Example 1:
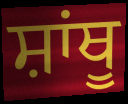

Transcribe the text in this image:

ਸ਼ਾਂਥੂ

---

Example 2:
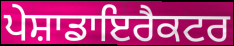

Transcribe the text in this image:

ਪੇਸ਼ਾਡਾਇਰੈਕਟਰ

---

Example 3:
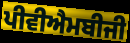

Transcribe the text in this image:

ਪੀਵੀਐਮਬੀਜੀ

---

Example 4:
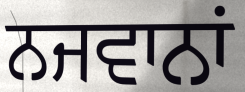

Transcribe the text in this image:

ਨਜਵਾਨਾਂ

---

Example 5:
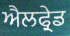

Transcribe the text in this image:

ਐਲਫ੍ਰੇਡ